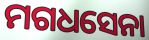
ମଗଧସେନା